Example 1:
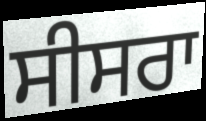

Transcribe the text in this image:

ਸੀਸਰਾ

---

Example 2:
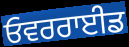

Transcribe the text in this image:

ਓਵਰਰਾਈਡ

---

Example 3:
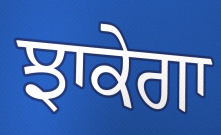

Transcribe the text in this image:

ਝਾਕੇਗਾ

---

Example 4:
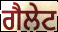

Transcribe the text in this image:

ਗੈਲੇਟ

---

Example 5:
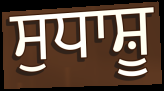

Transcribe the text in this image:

ਸੁਧਾਸ਼ੂ